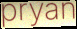
pryan